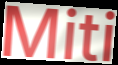
Miti